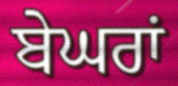
ਬੇਘਰਾਂ